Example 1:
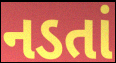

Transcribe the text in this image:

નડતાં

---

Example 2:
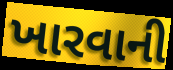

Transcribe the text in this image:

ખારવાની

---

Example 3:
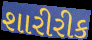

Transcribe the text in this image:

શારીરીક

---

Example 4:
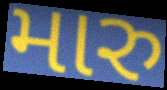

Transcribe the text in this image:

મારુ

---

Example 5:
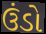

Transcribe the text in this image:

ઉંડો